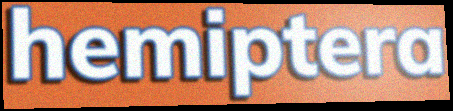
hemiptera